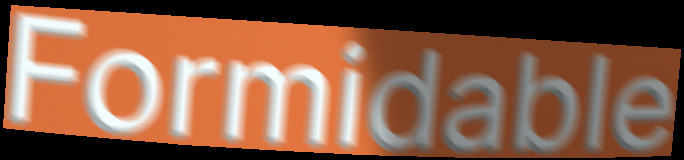
Formidable